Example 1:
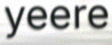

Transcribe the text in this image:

yeere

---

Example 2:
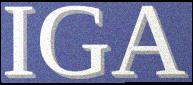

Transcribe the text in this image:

IGA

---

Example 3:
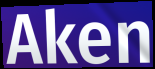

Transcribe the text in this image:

Aken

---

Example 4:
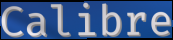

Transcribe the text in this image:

Calibre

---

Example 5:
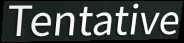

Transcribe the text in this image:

Tentative